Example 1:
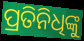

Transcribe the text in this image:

ପ୍ରତିନିଧିଙ୍କୁ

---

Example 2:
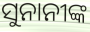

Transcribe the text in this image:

ସୁନାନୀଙ୍କ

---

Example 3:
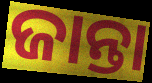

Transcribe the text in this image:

ଜାନ୍ତା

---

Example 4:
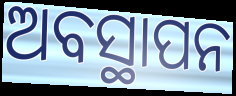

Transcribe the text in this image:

ଅବସ୍ଥାପନ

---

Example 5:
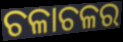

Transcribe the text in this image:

ଚଳାଚଳର